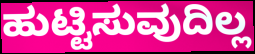
ಹುಟ್ಟಿಸುವುದಿಲ್ಲ